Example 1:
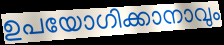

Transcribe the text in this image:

ഉപയോഗിക്കാനാവും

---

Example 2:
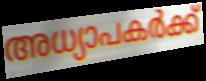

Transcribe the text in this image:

അധ്യാപകർക്ക്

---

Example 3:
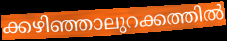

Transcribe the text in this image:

ക്കഴിഞ്ഞാലുറക്കത്തിൽ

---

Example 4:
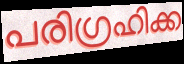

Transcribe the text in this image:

പരിഗ്രഹിക്ക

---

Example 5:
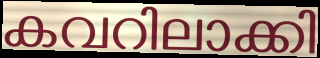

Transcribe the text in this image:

കവറിലാക്കി